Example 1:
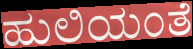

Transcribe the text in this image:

ಹುಲಿಯಂತೆ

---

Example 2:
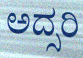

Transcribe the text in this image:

ಅದ್ಸರಿ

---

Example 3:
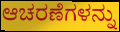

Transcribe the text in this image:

ಆಚರಣೆಗಳನ್ನು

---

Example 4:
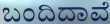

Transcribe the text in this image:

ಬಂದಿದಾವೆ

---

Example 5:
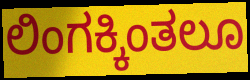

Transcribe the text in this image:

ಲಿಂಗಕ್ಕಿಂತಲೂ